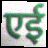
एई